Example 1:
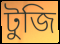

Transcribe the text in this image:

টুজি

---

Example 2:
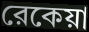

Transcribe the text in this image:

রেকেয়া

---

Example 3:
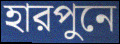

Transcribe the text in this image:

হারপুনে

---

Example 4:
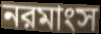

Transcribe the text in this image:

নরমাংস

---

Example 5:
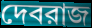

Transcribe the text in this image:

দেবরাজ